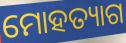
ମୋହତ୍ୟାଗ